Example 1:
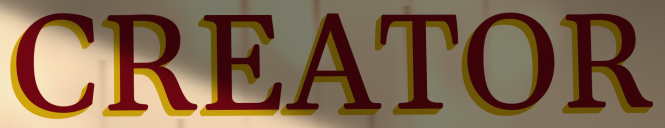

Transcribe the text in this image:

CREATOR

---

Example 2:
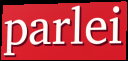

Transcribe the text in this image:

parlei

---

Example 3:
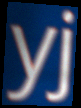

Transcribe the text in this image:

yj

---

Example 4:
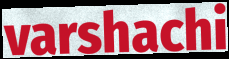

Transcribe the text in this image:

varshachi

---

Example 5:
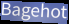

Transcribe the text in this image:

Bagehot